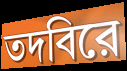
তদবিরে